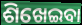
ଶିଖେଇବା